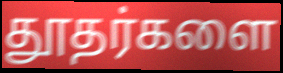
தூதர்களை